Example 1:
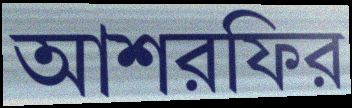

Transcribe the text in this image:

আশরফির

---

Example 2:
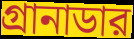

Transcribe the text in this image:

গ্রানাডার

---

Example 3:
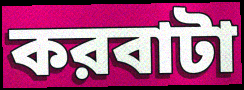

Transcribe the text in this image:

করবাটা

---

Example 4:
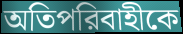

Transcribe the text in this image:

অতিপরিবাহীকে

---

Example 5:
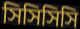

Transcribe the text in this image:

সিসিসিসি